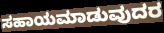
ಸಹಾಯಮಾಡುವುದರ